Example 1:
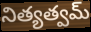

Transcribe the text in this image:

నిత్యత్వమ్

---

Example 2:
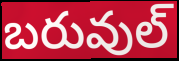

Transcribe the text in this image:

బరువుల్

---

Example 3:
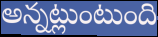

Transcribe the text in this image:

అన్నట్లుంటుంది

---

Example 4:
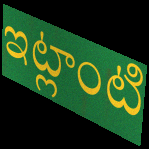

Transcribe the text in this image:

ఇట్లాంటి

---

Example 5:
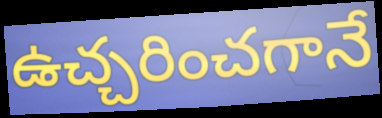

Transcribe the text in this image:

ఉచ్చరించగానే